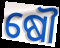
ଷୌ